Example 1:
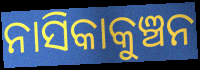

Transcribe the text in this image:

ନାସିକାକୁଞ୍ଚନ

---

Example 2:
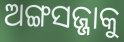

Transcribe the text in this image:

ଅଙ୍ଗସଜ୍ଜାକୁ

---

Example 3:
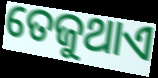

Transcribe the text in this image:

ତେଜୁଥାଏ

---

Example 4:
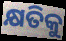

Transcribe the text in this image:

କ୍ଷତିକୁ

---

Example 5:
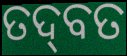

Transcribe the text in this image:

ତଦ୍‍ବତ